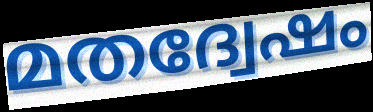
മതദ്വേഷം